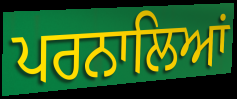
ਪਰਨਾਲਿਆਂ